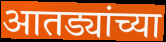
आतड्यांच्या